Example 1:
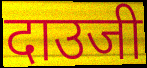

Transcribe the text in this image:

दाउजी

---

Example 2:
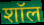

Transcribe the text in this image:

शॉल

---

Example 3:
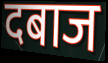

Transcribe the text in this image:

दबाज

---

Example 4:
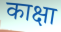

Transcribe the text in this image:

काक्षा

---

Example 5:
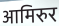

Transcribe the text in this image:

आमिरुर